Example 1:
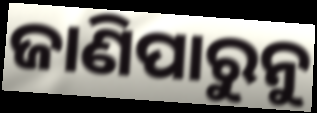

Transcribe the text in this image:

ଜାଣିପାରୁନୁ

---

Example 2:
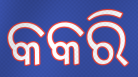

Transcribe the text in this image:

କକରି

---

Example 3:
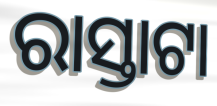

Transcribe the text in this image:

ରାସ୍ତାଟା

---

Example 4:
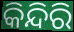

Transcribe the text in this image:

କିନ୍ଦିରି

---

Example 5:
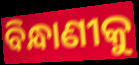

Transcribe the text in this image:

ବିନ୍ଧାଣୀକୁ